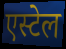
एस्टेल